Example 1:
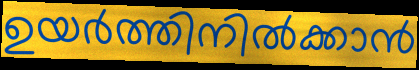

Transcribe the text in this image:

ഉയർത്തിനിൽക്കാൻ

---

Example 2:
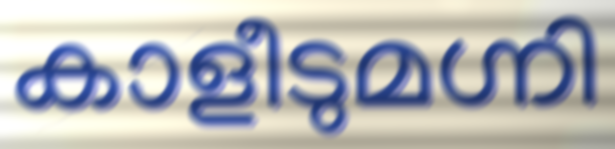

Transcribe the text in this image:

കാളീടുമഗ്നി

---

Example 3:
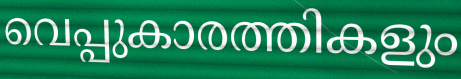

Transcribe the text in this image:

വെപ്പുകാരത്തികളും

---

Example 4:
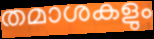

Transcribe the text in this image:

തമാശകളും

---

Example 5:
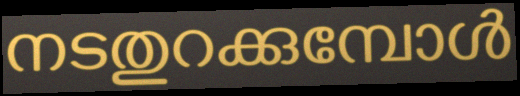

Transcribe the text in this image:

നടതുറക്കുമ്പോൾ